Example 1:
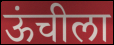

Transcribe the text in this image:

ऊंचीला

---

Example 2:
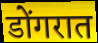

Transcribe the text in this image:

डोंगरात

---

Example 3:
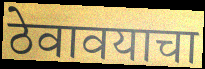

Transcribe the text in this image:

ठेवावयाचा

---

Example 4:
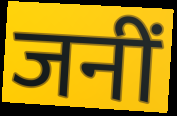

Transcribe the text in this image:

जनीं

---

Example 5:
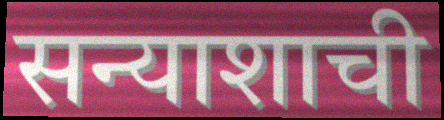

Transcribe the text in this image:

सन्याशाची